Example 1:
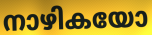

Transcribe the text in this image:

നാഴികയോ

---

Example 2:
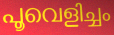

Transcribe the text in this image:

പൂവെളിച്ചം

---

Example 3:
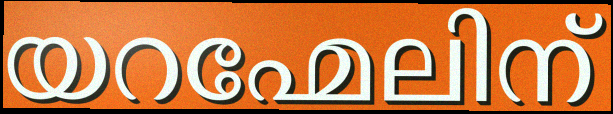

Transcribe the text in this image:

യറഹ്മേലിന്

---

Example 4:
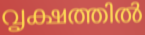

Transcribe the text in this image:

വൃക്ഷത്തിൽ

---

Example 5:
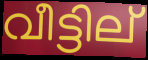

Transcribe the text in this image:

വീട്ടില്